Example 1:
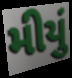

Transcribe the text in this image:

મીયું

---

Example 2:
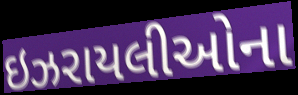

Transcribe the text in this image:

ઇઝરાયલીઓના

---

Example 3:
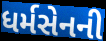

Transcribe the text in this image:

ધર્મસેનની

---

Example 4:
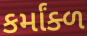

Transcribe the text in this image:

કર્માંક્ળ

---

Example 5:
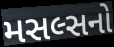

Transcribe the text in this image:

મસલ્સનો